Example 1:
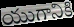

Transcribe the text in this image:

యుగానికి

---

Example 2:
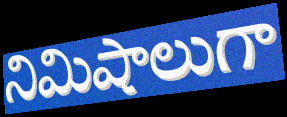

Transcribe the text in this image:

నిమిషాలుగా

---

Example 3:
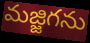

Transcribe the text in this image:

మజ్జిగను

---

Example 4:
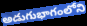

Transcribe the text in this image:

అడుగుభాగంలోని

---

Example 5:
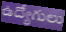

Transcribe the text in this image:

ఉద్యోగులు